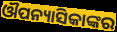
ଔପନ୍ୟାସିକାଙ୍କର